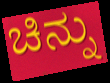
ಚಿನ್ನು